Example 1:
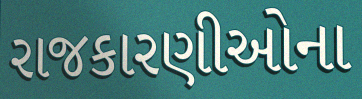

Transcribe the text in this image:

રાજકારણીઓના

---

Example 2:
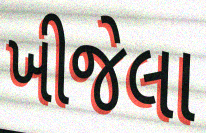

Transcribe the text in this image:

ખીજેલા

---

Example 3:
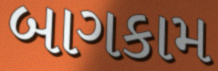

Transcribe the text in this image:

બાગકામ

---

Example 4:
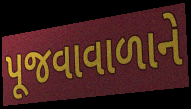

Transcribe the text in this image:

પૂજવાવાળાને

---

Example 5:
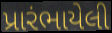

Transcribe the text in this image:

પ્રારંભાયેલી